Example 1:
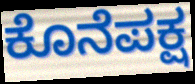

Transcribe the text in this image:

ಕೊನೆಪಕ್ಷ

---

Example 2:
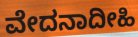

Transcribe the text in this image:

ವೇದನಾದೀಹಿ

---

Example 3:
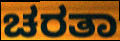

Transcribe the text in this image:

ಚರತಾ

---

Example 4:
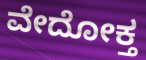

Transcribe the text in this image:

ವೇದೋಕ್ತ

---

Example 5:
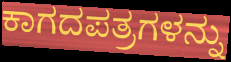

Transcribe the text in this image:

ಕಾಗದಪತ್ರಗಳನ್ನು